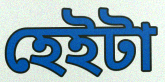
হেইটা